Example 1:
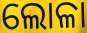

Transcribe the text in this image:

ଲୋଳା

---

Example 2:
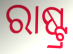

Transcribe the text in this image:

ରାଷ୍ଟ୍ର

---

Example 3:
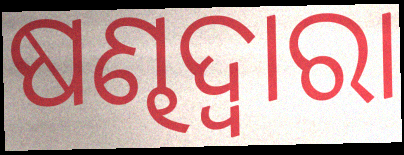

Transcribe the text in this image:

ଷଣ୍ଢଦ୍ୱାରା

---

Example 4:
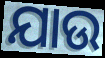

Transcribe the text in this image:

ଯାଉ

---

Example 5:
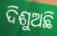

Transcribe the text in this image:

ଦିଶୁଅଛି